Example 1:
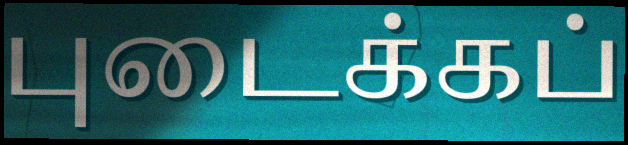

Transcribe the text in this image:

புடைக்கப்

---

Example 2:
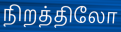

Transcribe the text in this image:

நிறத்திலோ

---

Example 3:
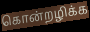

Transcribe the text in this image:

கொன்றழிக்க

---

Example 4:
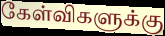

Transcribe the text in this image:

கேள்விகளுக்கு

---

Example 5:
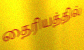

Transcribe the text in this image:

தைரியத்தில்